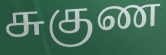
சுகுண